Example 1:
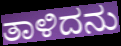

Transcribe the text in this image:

ತಾಳಿದನು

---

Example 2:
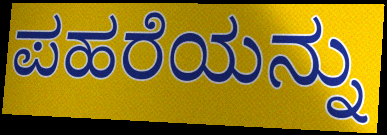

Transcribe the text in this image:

ಪಹರೆಯನ್ನು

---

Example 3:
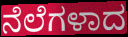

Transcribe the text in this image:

ನೆಲೆಗಳಾದ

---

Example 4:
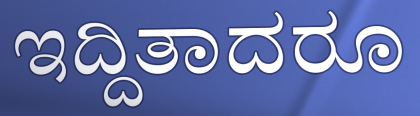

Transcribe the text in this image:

ಇದ್ದಿತಾದರೂ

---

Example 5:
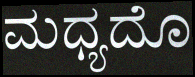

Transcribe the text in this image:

ಮಧ್ಯದೊ